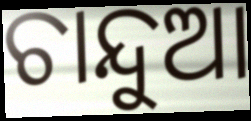
ଚାନ୍ଦୁଆ